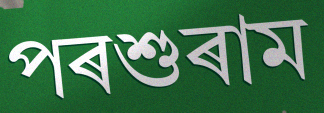
পৰশুৰাম